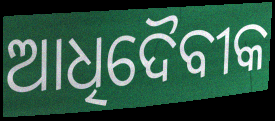
ଆଧିଦୈବୀକ